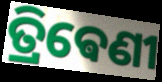
ତ୍ରିଵେଣୀ